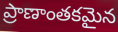
ప్రాణాంతకమైన